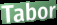
Tabor